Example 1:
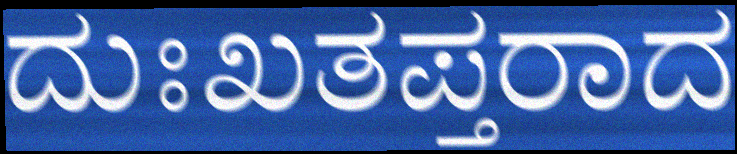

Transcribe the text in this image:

ದುಃಖತಪ್ತರಾದ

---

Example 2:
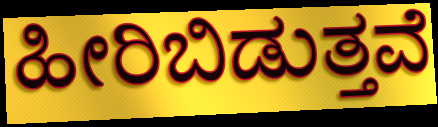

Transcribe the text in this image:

ಹೀರಿಬಿಡುತ್ತವೆ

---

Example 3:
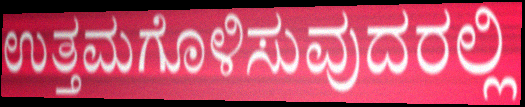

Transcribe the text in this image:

ಉತ್ತಮಗೊಳಿಸುವುದರಲ್ಲಿ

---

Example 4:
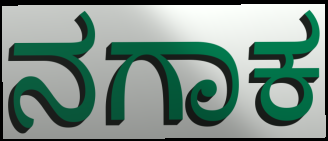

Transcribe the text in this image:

ನಗಾಕ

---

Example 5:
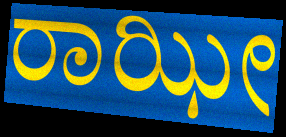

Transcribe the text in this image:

ರಾಝೀ